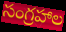
సంగ్రహాల